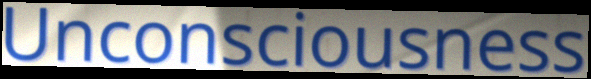
Unconsciousness